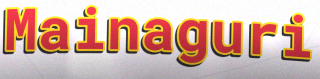
Mainaguri